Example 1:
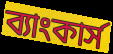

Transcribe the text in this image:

ব্যাংকার্স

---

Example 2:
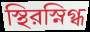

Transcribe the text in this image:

স্থিরস্নিগ্ধ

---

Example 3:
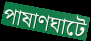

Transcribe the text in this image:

পাষাণঘাটে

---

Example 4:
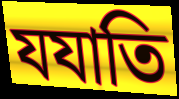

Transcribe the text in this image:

যযাতি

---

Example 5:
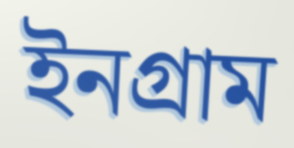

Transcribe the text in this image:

ইনগ্রাম